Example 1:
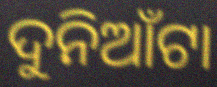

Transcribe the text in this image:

ଦୁନିଆଁଟା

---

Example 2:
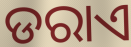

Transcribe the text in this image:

ଡରାଏ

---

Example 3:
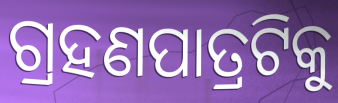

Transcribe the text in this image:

ଗ୍ରହଣପାତ୍ରଟିକୁ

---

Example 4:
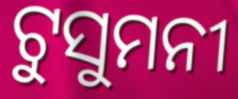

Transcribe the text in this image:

ଟୁସୁମନୀ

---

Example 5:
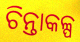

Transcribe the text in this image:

ଚିନ୍ତାକଳ୍ପ